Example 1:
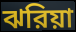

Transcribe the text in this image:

ঝরিয়া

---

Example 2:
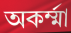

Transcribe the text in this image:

অকর্ম্মা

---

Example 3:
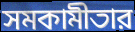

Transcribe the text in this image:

সমকামীতার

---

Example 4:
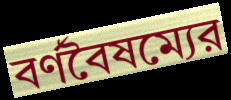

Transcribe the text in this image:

বর্ণবৈষম্যের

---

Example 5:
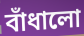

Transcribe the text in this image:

বাঁধালো